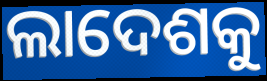
ଲାଦେଶକୁ